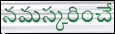
నమస్కరించే